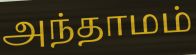
அந்தாமம்